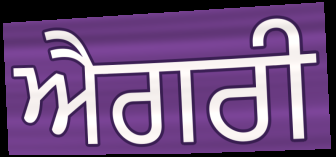
ਐਗਰੀ